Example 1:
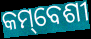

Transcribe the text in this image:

କମ୍‌ବେଶୀ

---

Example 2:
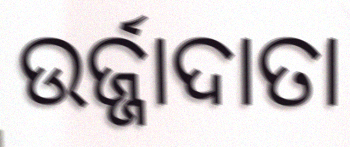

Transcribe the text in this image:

ଉର୍ଜ୍ଜାଦାତା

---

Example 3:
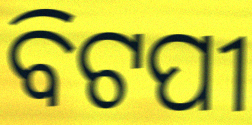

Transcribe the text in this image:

ବିଟପୀ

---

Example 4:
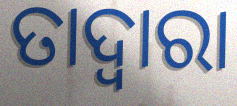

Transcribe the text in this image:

ତାଦ୍ଵାରା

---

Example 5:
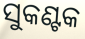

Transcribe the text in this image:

ସୁକଣ୍ଟକ